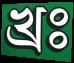
খ্রঃ